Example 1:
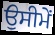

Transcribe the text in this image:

ਉਸੀਮੇਂ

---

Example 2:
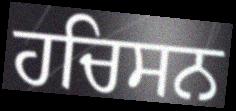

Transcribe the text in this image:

ਹਚਿਸਨ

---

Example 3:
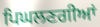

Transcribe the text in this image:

ਪਿਘਲਣਗੀਆਂ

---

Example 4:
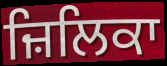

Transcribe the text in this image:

ਜ਼ਿਲਿਕਾ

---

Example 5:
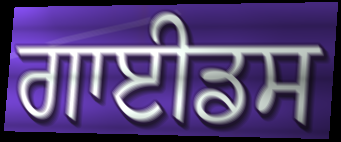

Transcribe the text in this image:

ਗਾਈਡਸ